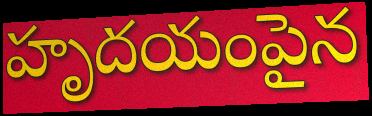
హృదయంపైన